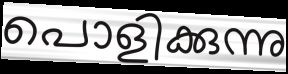
പൊളിക്കുന്നു